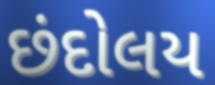
છંદોલય